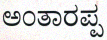
ಅಂತಾರಪ್ಪ